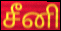
சீனி